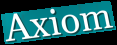
Axiom